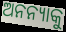
ଅନନ୍ୟାକୁ